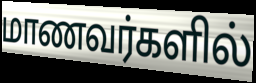
மாணவர்களில்